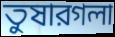
তুষারগলা